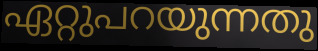
ഏറ്റുപറയുന്നതു